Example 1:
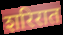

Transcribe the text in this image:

शरिरात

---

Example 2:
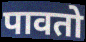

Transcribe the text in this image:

पावतो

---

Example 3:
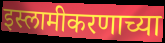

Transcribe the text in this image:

इस्लामीकरणाच्या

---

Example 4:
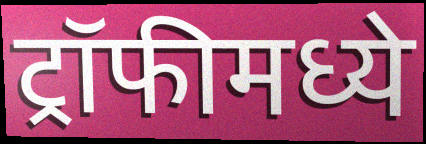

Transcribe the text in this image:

ट्रॉफीमध्ये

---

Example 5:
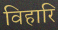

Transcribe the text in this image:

विहारि